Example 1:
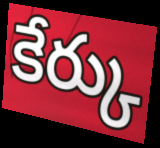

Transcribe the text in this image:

కేర్కు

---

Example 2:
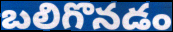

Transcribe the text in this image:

బలిగొనడం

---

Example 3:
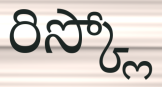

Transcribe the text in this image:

రిస్క్లో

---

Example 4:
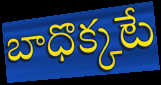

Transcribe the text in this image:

బాధొక్కటే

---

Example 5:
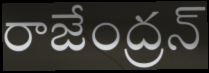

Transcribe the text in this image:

రాజేంద్రన్